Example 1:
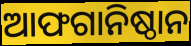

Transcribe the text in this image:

ଆଫଗାନିଷ୍ଠାନ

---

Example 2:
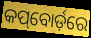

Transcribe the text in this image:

କପ୍‌ବୋର୍ଡ଼ରେ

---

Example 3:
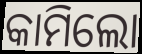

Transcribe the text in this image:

କାମିଲୋ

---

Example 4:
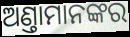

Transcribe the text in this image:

ଅଣ୍ତାମାନଙ୍କର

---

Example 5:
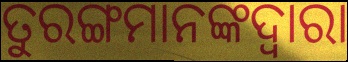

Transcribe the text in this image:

ତୁରଙ୍ଗମାନଙ୍କଦ୍ୱାରା